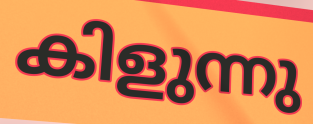
കിളുന്നു